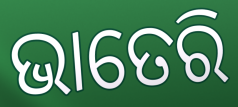
ଭାତେରି